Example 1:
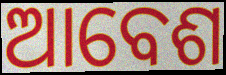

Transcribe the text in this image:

ଆବେଶ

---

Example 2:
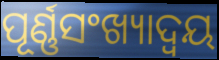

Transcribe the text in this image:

ପୂର୍ଣ୍ଣସଂଖ୍ୟାଦ୍ଵୟ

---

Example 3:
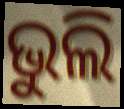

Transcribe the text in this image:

ଭୁଲି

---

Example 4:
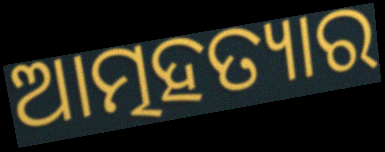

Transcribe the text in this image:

ଆତ୍ମହତ୍ୟାର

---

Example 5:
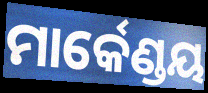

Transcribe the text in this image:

ମାର୍କେଣ୍ଡୟ